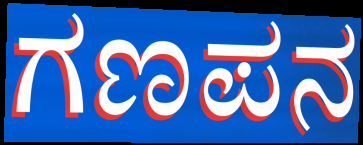
ಗಣಪನ